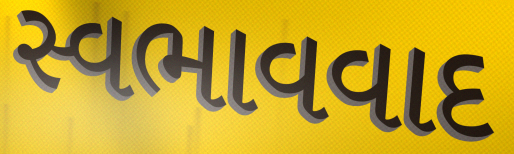
સ્વભાવવાદ